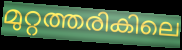
മുറ്റത്തരികിലെ